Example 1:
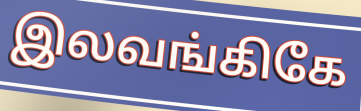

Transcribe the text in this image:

இலவங்கிகே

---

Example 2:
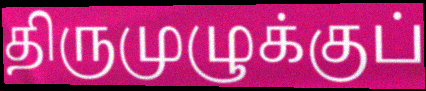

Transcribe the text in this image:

திருமுழுக்குப்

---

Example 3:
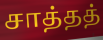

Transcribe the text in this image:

சாத்தத்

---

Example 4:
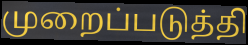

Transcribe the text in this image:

முறைப்படுத்தி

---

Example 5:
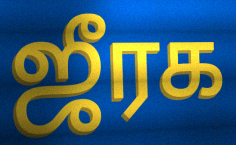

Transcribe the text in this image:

ஜீரக